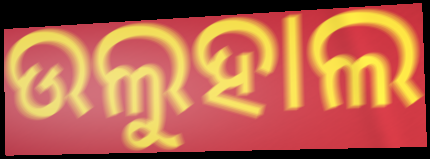
ଉଲୁହାଲ